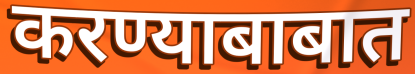
करण्याबाबात